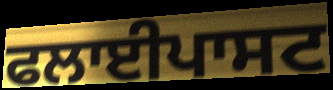
ਫਲਾਈਪਾਸਟ